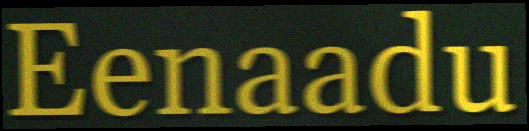
Eenaadu